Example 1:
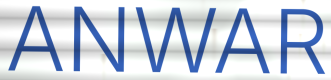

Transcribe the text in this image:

ANWAR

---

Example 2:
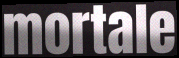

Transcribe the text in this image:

mortale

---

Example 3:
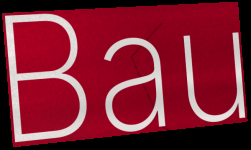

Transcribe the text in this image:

Bau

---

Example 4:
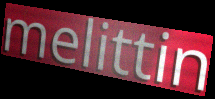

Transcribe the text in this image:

melittin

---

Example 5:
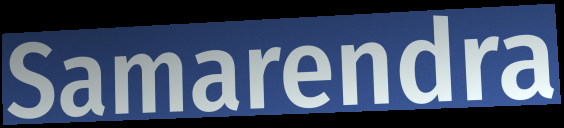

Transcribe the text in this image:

Samarendra